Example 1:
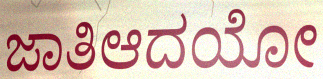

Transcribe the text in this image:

ಜಾತಿಆದಯೋ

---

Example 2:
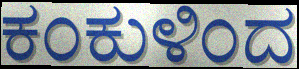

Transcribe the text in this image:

ಕಂಕುಳಿಂದ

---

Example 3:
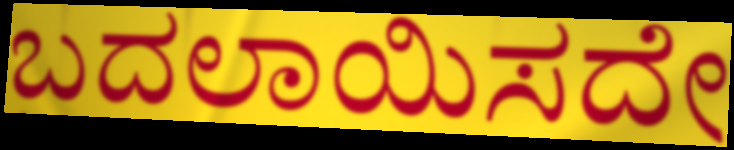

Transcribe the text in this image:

ಬದಲಾಯಿಸದೇ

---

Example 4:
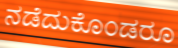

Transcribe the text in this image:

ನಡೆದುಕೊಂಡರೂ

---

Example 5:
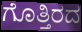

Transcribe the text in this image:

ಗೊತ್ತಿರದ